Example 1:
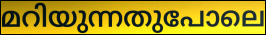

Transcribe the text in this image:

മറിയുന്നതുപോലെ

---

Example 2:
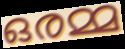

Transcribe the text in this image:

ഒരമ്മ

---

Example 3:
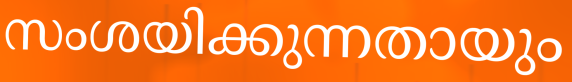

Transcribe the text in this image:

സംശയിക്കുന്നതായും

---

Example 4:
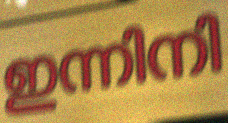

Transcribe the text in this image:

ഇന്നിനി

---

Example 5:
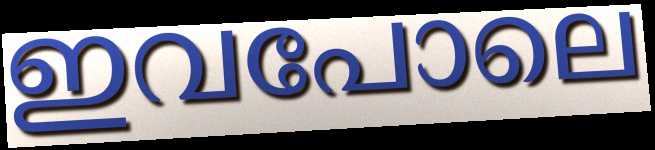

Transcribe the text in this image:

ഇവപോലെ